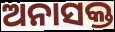
ଅନାସକ୍ତ